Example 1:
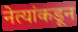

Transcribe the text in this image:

नेत्यांकडून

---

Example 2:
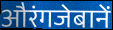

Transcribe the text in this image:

औरंगजेबानें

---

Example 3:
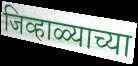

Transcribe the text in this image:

जिव्हाळ्याच्या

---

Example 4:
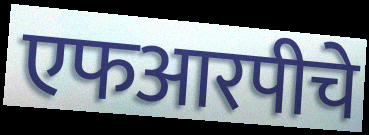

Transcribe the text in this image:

एफआरपीचे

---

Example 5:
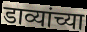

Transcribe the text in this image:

डाव्यांच्या